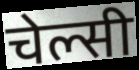
चेल्सी